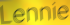
Lennie